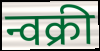
न्वक्री